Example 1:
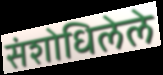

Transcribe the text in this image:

संशोधिलेले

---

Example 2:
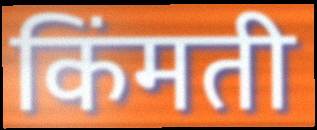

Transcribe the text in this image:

किंमती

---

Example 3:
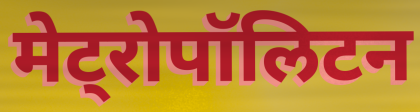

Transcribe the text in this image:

मेट्रोपॉलिटन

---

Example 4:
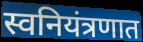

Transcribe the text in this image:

स्वनियंत्रणात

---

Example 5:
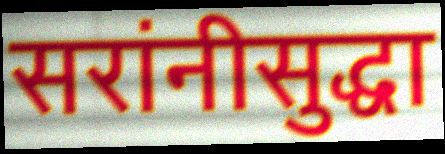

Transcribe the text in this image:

सरांनीसुद्धा